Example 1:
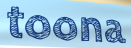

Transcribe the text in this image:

toona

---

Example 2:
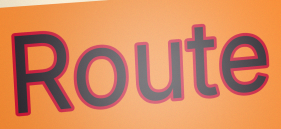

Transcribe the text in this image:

Route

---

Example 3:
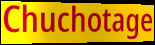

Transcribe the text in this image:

Chuchotage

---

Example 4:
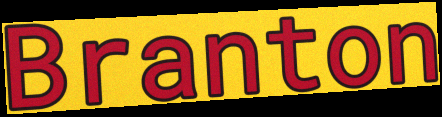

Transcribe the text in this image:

Branton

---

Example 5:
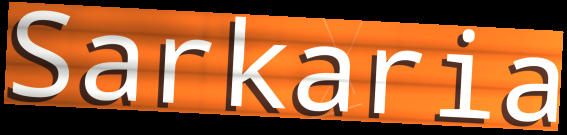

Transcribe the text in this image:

Sarkaria